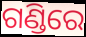
ଗଣ୍ଡିରେ